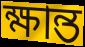
ক্ষান্ত